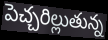
పెచ్చరిల్లుతున్న